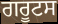
ਗਰੂਟਸ